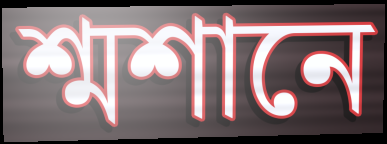
শ্মশানে